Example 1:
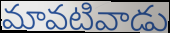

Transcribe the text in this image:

మావటివాడు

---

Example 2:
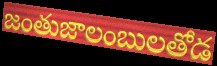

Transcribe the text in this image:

జంతుజాలంబులతోడ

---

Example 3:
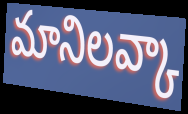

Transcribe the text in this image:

మానిలవ్కా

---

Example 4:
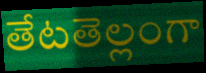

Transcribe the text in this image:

తేటతెల్లంగా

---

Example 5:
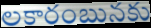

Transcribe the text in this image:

లకారంబునకు